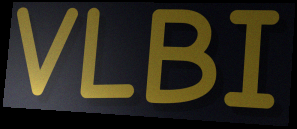
VLBI